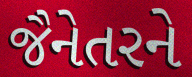
જૈનેતરને